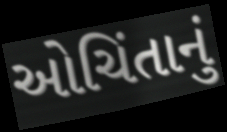
ઓચિંતાનું